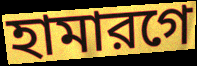
হামারগে